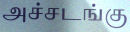
அச்சடங்கு